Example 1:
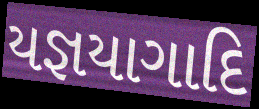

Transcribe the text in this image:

યજ્ઞયાગાદિ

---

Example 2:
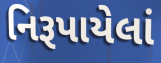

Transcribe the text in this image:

નિરૂપાયેલાં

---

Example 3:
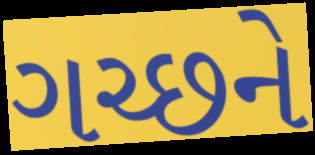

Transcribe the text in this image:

ગચ્છને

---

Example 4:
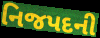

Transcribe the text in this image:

નિજપદની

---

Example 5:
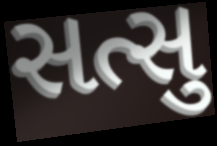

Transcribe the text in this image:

સત્સુ